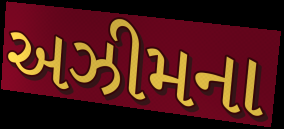
અઝીમના